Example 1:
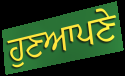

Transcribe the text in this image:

ਹੁਣਆਪਣੇ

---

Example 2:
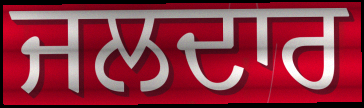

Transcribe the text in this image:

ਜਲਦਾਰ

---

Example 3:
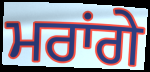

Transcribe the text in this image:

ਮਰਾਂਗੇ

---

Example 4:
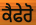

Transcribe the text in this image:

ਕੈਫੇਰੋ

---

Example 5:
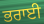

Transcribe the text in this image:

ਭਰਾਈ